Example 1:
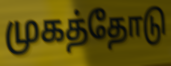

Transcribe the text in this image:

முகத்தோடு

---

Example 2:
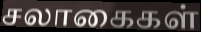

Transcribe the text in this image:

சலாகைகள்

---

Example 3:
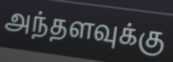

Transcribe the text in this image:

அந்தளவுக்கு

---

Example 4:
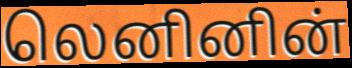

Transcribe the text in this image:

லெனினின்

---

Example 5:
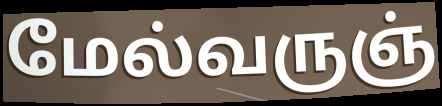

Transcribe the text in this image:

மேல்வருஞ்